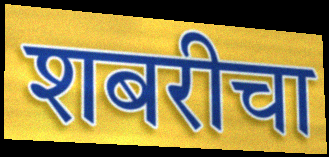
शबरीचा